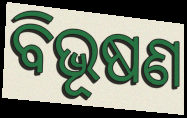
ବିଭୂଷଣ